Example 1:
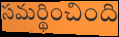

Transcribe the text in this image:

సమర్థించింది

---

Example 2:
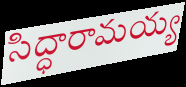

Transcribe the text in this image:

సిద్ధారామయ్య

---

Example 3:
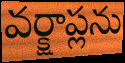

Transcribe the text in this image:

వర్క్షాప్లను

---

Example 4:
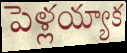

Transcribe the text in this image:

పెళ్లయ్యాక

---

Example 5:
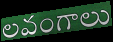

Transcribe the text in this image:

లవంగాలు